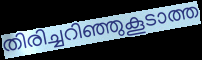
തിരിച്ചറിഞ്ഞുകൂടാത്ത